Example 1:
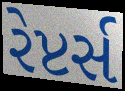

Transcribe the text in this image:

રેપ્ટર્સ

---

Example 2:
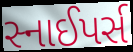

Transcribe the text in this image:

સ્નાઈપર્સ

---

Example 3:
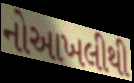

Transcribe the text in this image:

નોઆખલીથી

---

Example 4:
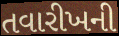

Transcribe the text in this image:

તવારીખની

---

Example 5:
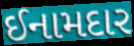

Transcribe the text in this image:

ઈનામદાર